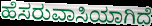
ಹೆಸರುವಾಸಿಯಾಗಿದೆ